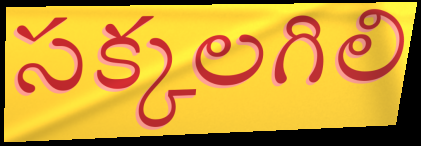
సక్కలగిలి